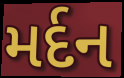
મર્દન